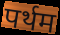
पर्थम